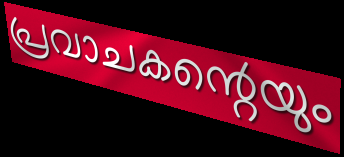
പ്രവാചകന്റെയും